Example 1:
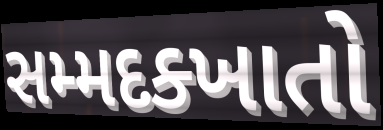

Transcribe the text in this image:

સમ્મદક્ખાતો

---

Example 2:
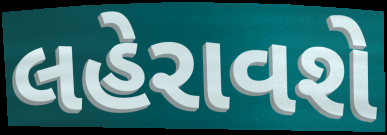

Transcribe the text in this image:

લહેરાવશે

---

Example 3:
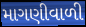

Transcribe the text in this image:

માગણીવાળી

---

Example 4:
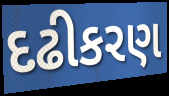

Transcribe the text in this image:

દઢીકરણ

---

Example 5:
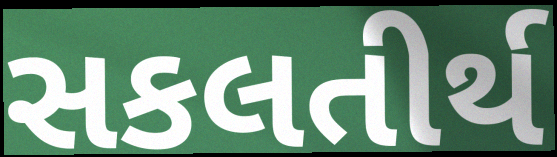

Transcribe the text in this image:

સકલતીર્થ